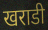
खराडी